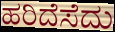
ಹರಿದೆಸೆದು